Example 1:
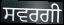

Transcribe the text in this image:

ਸਵਰਗੀ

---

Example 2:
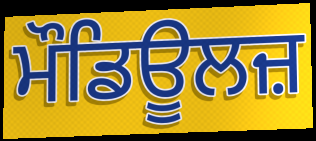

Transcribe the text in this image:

ਮੌਡਿਊਲਜ਼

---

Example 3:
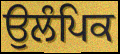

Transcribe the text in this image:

ਉਲੰਪਿਕ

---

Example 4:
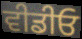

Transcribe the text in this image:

ਵੀਡੀਓ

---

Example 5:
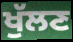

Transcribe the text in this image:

ਖੁੱਲਣ